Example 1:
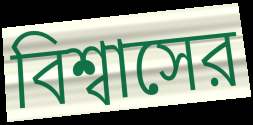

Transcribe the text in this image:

বিশ্বাসের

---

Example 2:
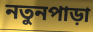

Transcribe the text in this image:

নতুনপাড়া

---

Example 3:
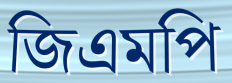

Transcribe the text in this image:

জিএমপি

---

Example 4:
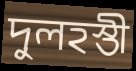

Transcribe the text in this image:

দুলহস্তী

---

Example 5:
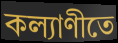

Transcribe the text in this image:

কল্যাণীতে